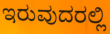
ಇರುವುದರಲ್ಲಿ